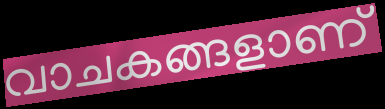
വാചകങ്ങളാണ്